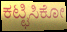
ಕಟ್ಟಿಸಿಕೋ